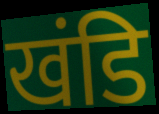
खंडि